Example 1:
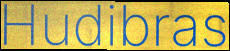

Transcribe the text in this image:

Hudibras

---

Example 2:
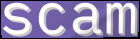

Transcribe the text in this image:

scam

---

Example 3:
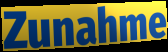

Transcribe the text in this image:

Zunahme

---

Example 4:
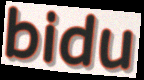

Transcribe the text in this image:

bidu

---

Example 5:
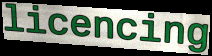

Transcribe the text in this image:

licencing